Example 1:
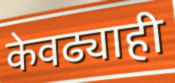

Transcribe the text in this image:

केवढ्याही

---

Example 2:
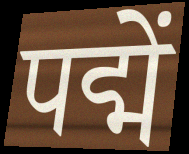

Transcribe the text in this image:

पद्में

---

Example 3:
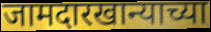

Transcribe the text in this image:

जामदारखान्याच्या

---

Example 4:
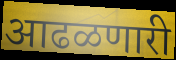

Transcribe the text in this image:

आढळणारी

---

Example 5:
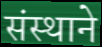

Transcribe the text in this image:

संस्थाने